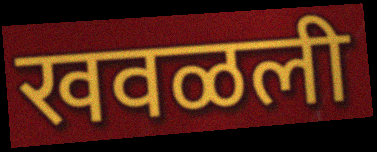
खवळली